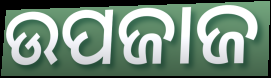
ଉପଜାଜ